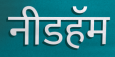
नीडहॅम